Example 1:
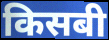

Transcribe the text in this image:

किसबी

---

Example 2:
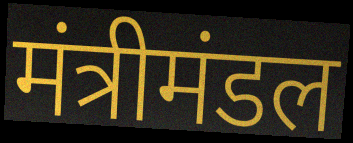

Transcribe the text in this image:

मंत्रीमंडल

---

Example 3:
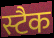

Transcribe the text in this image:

स्‍टैक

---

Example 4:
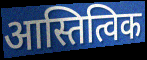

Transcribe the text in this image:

आस्तित्विक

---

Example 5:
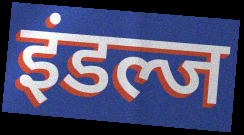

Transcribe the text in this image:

इंडल्ज